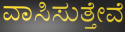
ವಾಸಿಸುತ್ತೇವೆ